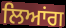
ਲਿਆਂਗ